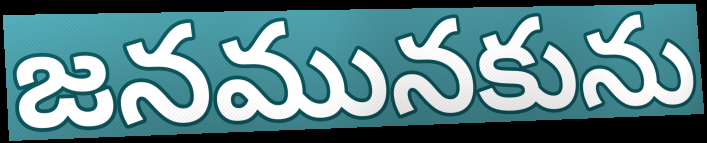
జనమునకును